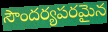
సౌందర్యపరమైన